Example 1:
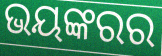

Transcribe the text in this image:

ଭୟଙ୍କରର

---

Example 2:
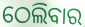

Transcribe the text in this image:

ଠେଲିବାର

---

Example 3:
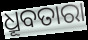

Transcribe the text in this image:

ଧ୍ରୂବତାରା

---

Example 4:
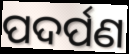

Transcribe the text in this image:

ପଦର୍ପଣ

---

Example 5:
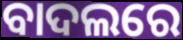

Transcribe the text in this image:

ବାଦଲରେ